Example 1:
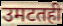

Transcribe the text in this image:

उमटतही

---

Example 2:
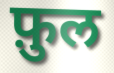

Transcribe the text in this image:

फ़ुल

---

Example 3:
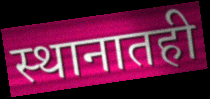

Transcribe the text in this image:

स्थानातही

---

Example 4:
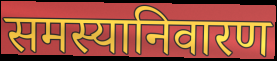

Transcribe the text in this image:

समस्यानिवारण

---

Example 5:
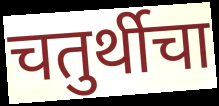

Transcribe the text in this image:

चतुर्थीचा